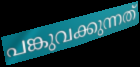
പങ്കുവക്കുന്നത്